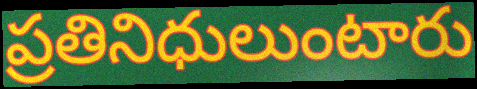
ప్రతినిధులుంటారు